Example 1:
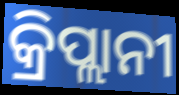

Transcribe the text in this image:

କ୍ରିପ୍ଲାନୀ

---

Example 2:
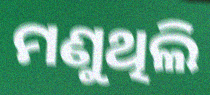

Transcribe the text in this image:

ମଣୁଥିଲି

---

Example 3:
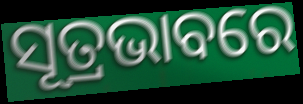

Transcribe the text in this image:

ସୂତ୍ରଭାବରେ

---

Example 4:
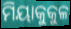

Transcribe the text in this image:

ମିୟାକୁକୁଳ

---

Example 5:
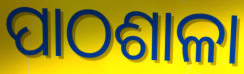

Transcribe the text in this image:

ପାଠଶାଳା